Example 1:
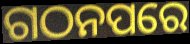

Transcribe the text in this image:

ଗଠନପରେ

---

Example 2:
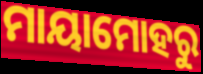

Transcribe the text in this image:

ମାୟାମୋହରୁ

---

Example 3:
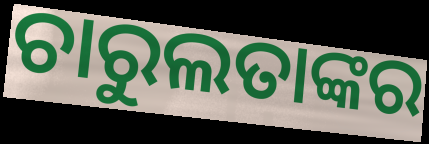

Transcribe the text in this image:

ଚାରୁଲତାଙ୍କର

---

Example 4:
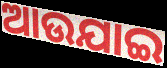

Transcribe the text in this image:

ଆଉଯାଇ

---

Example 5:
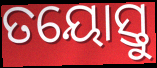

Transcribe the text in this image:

ତୟୋସ୍ତୁ